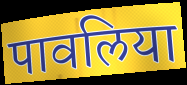
पावलिया